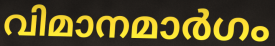
വിമാനമാർഗം